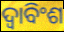
ଦ୍ଵାବିଂଶ